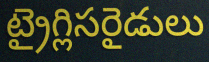
ట్రైగ్లిసరైడులు